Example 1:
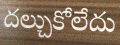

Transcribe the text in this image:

దల్చుకోలేదు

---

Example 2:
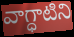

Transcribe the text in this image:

వాగ్ధాటిని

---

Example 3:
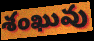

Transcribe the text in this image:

శంఖువు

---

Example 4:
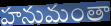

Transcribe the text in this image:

హనుమంతా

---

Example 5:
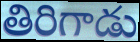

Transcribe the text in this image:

తిరిగాడు